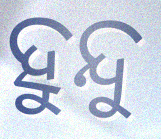
ହୁନ୍ଦୁ